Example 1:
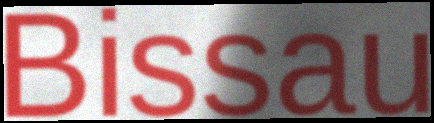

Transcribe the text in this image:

Bissau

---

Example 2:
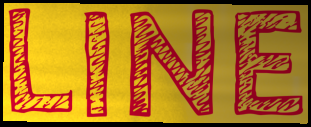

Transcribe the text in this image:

LINE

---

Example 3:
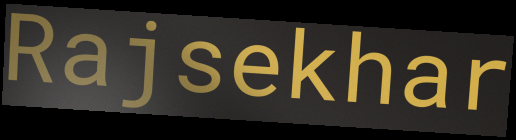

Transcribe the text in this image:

Rajsekhar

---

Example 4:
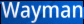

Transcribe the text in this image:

Wayman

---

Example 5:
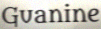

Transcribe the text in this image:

Guanine